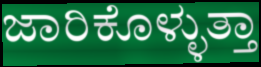
ಜಾರಿಕೊಳ್ಳುತ್ತಾ